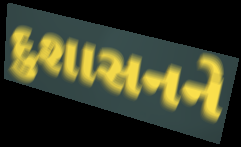
દુશાસનને